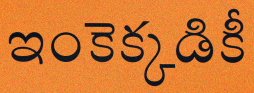
ఇంకెక్కడికీ